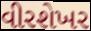
વીરશેખર